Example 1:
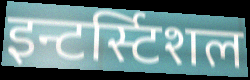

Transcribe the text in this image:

इन्टर्स्टिशल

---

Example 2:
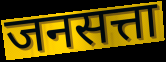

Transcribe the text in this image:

जनसत्ता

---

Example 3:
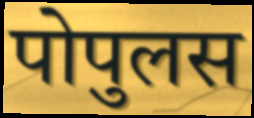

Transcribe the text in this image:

पोपुलस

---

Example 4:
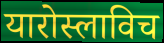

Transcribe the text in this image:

यारोस्लाविच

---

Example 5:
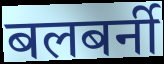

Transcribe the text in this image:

बलबर्नी